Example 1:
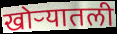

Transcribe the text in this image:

खोऱ्यातली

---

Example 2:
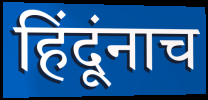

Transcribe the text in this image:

हिंदूंनाच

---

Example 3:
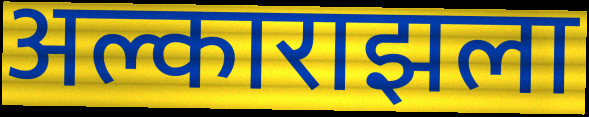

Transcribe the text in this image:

अल्काराझला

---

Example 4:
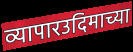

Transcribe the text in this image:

व्यापारउदिमाच्या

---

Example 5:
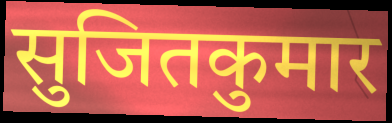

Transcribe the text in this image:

सुजितकुमार